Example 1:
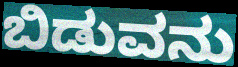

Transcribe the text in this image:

ಬಿಡುವನು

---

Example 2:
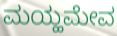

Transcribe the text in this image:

ಮಯ್ಹಮೇವ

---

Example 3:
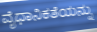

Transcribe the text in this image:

ವೈಧಾನಿಕತೆಯನ್ನು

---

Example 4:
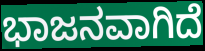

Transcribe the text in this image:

ಭಾಜನವಾಗಿದೆ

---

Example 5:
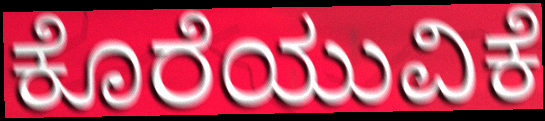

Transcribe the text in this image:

ಕೊರೆಯುವಿಕೆ